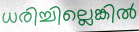
ധരിച്ചില്ലെങ്കിൽ